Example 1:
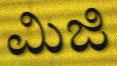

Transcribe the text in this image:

ಮಿಜಿ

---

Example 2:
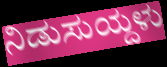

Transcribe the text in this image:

ನಿಡುಸುಯ್ದಳು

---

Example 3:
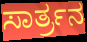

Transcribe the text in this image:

ಸಾರ್ತ್ರನ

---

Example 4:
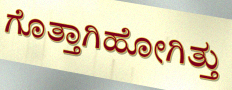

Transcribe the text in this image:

ಗೊತ್ತಾಗಿಹೋಗಿತ್ತು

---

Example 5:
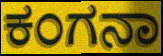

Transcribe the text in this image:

ಕಂಗನಾ